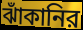
ঝাঁকানির